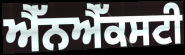
ਐੱਨਐੱਕਸਟੀ